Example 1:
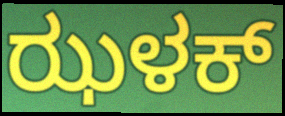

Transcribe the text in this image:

ಝಳಕ್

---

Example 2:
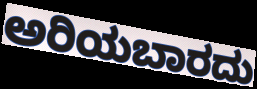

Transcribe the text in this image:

ಅರಿಯಬಾರದು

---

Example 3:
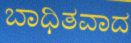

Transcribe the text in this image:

ಬಾಧಿತವಾದ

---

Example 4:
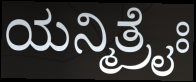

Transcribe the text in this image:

ಯನ್ಮಿತ್ರೈಃ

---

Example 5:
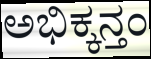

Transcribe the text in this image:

ಅಭಿಕ್ಕನ್ತಂ